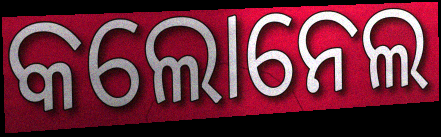
କଲୋନେଲ